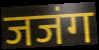
जजंग